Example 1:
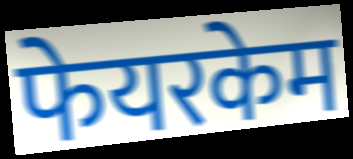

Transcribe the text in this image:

फेयरकेम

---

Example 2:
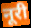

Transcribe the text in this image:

नूरी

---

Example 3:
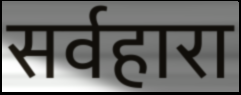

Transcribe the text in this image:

सर्वहारा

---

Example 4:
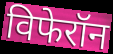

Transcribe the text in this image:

विफेरॉन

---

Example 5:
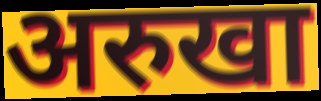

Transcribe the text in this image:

अरुखा